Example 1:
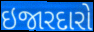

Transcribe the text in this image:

ઇજારદારો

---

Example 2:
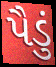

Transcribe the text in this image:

પૈડું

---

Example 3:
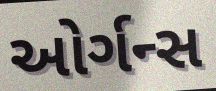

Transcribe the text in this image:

ઓર્ગન્સ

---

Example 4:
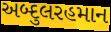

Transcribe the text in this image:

અબ્દુલરહમાન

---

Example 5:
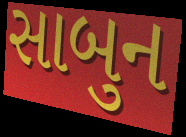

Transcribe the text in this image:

સાબુન